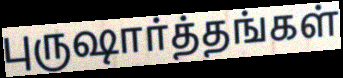
புருஷார்த்தங்கள்